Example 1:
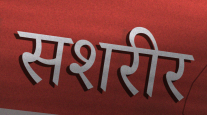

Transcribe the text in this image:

सशरीर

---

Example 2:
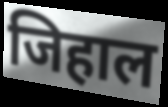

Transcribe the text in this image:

जिहाल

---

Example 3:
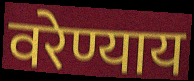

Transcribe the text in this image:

वरेण्याय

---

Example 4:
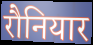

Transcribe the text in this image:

रौनियार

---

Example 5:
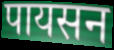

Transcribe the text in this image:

पायसन